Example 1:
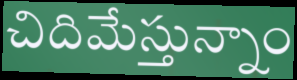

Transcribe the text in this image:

చిదిమేస్తున్నాం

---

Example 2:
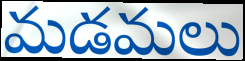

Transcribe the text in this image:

మడమలు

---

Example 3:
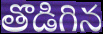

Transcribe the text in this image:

తొడిగిన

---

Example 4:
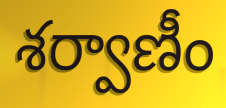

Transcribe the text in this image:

శర్వాణీం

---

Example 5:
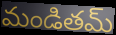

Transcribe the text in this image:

మండితమ్